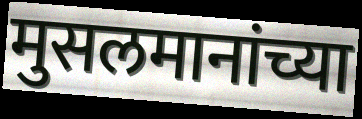
मुसलमानांच्या